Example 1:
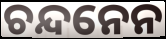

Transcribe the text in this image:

ଚନ୍ଦନେନ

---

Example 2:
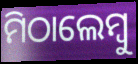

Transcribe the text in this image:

ମିଠାଲେମ୍ବୁ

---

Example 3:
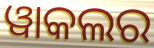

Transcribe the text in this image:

ୱାକଲର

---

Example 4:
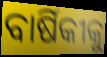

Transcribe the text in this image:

ବାର୍ଷିକୀକୁ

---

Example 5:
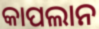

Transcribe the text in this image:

କାପଲାନ